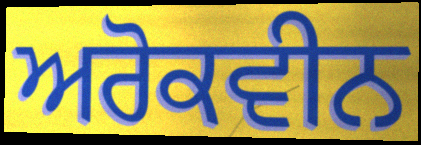
ਅਰੋਕਵੀਨ